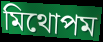
মিথোপম